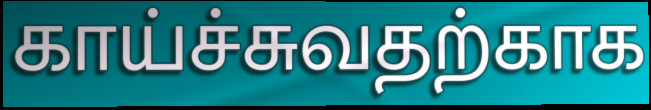
காய்ச்சுவதற்காக